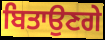
ਬਿਤਾਉਣਗੇ